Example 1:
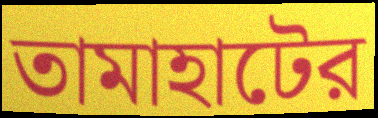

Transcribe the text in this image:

তামাহাটের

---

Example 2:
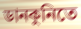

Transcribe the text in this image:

ডানকুনিতে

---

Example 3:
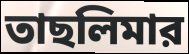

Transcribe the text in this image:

তাছলিমার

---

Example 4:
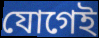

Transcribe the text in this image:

যোগেই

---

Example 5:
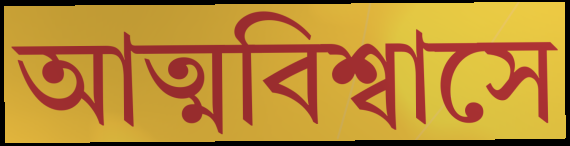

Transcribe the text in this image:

আত্মবিশ্বাসে